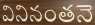
వినినంతనె